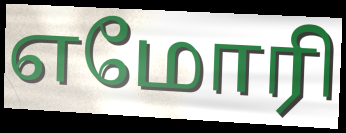
எமோரி